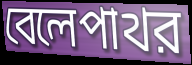
বেলেপাথর